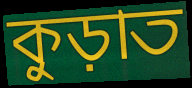
কুড়াত